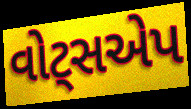
વોટ્સએપ